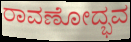
ರಾವಣೋದ್ಭವ